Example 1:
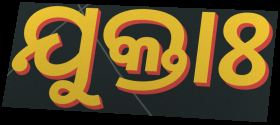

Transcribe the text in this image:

ଯୁକ୍ତାଃ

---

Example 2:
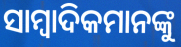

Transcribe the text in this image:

ସାମ୍ବାଦିକମାନଙ୍କୁ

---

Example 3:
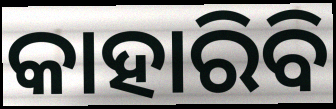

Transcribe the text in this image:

କାହାରିବି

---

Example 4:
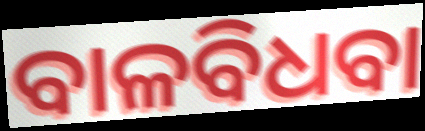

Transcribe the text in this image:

ବାଳବିଧବା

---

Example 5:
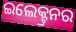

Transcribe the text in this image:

ଇଲେକ୍ଟ୍ରନର